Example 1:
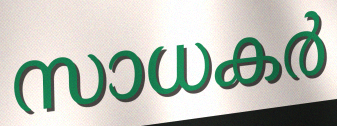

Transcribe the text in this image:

സാധകർ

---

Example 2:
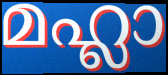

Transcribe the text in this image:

മഹ്ലാ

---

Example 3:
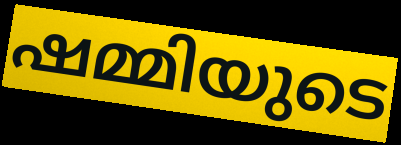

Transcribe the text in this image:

ഷമ്മിയുടെ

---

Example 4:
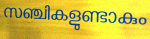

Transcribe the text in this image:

സഞ്ചികളുണ്ടാകും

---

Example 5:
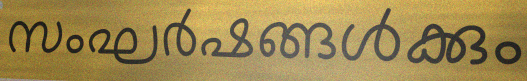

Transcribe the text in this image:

സംഘർഷങ്ങൾക്കും